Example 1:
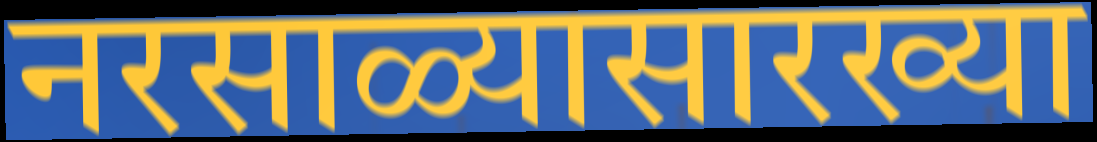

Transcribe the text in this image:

नरसाळ्यासारख्या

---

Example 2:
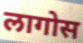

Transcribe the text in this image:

लागोस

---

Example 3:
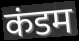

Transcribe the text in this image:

कंडम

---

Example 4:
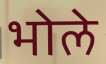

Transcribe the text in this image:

भोले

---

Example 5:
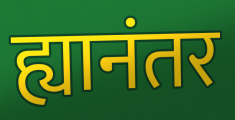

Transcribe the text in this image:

ह्यानंतर